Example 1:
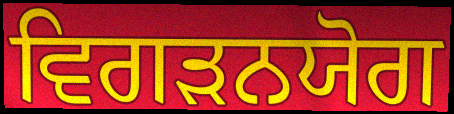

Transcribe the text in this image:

ਵਿਗੜਨਯੋਗ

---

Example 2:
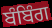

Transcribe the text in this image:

ਬੰਬਿੰਗ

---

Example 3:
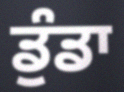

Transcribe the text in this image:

ਡੁੰਡਾ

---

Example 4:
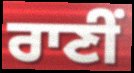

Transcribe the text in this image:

ਰਾਣੀਂ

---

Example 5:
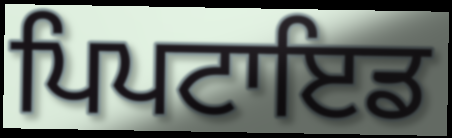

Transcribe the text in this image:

ਪਿਪਟਾਇਡ